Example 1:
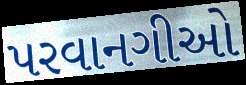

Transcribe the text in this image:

પરવાનગીઓ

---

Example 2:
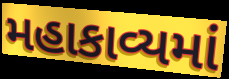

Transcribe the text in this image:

મહાકાવ્યમાં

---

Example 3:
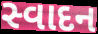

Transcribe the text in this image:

સ્વાદન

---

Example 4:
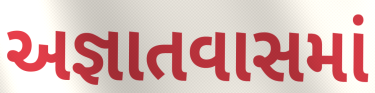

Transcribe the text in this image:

અજ્ઞાતવાસમાં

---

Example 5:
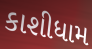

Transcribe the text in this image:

કાશીધામ